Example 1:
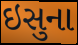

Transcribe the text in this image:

ઇસુના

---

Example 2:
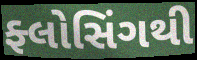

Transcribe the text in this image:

ફ્લોસિંગથી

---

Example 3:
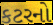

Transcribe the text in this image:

કટરનો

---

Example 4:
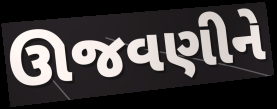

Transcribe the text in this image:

ઊજવણીને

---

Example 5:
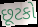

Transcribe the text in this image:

છૂટકો